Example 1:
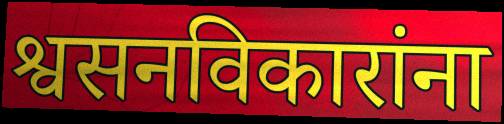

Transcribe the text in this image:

श्वसनविकारांना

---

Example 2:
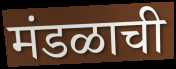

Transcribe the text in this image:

मंडळाची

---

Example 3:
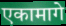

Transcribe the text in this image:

एकामागे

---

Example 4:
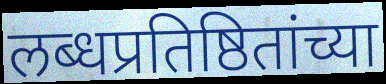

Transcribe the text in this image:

लब्धप्रतिष्ठितांच्या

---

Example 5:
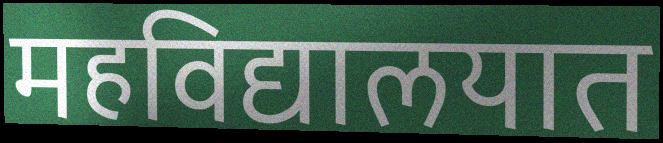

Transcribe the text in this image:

महविद्यालयात